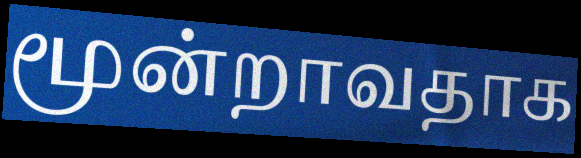
மூன்றாவதாக